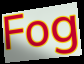
Fog